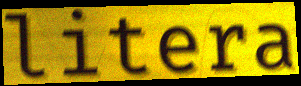
litera